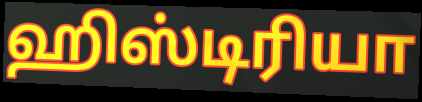
ஹிஸ்டிரியா